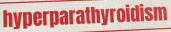
hyperparathyroidism